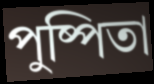
পুষ্পিতা